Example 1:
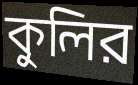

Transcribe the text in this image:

কুলির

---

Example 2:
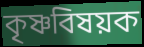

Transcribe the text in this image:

কৃষ্ণবিষয়ক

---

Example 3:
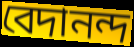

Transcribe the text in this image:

বেদানন্দ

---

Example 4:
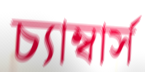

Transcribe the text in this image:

চ্যাম্বার্স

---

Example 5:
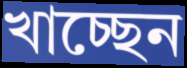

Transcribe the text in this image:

খাচ্ছেন